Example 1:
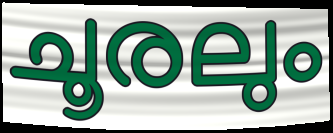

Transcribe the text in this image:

ചൂരലും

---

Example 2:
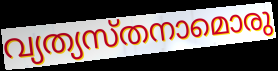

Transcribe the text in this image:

വ്യത്യസ്തനാമൊരു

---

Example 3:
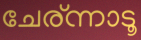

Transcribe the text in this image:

ചേര്ന്നാടൂ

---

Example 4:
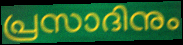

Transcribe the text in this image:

പ്രസാദിനും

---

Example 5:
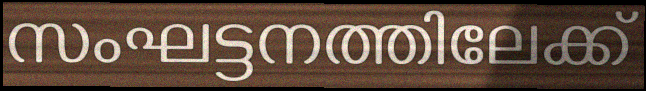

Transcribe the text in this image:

സംഘട്ടനത്തിലേക്ക്